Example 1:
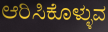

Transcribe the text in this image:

ಆರಿಸಿಕೊಳ್ಳುವ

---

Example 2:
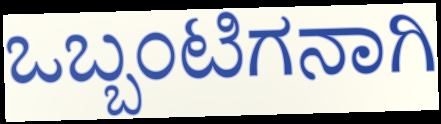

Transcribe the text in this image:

ಒಬ್ಬಂಟಿಗನಾಗಿ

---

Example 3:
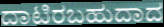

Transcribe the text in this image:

ದಾಟಿರಬಹುದಾದ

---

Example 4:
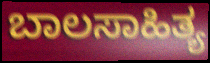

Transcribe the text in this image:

ಬಾಲಸಾಹಿತ್ಯ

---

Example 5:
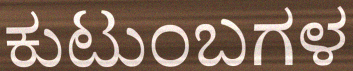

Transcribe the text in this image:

ಕುಟುಂಬಗಳ